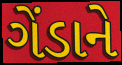
ગેંડાને